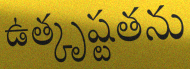
ఉత్కృష్టతను